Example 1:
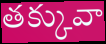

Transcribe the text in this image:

తక్కువా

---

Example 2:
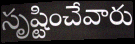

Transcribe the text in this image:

సృష్టించేవారు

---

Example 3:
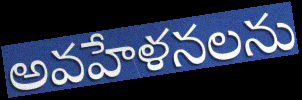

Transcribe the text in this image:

అవహేళనలను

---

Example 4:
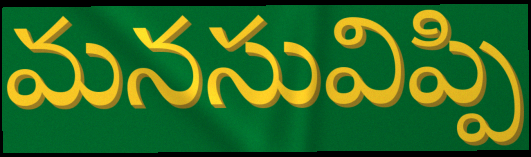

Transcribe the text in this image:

మనసువిప్పి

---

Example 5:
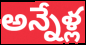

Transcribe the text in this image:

అన్నేళ్ల